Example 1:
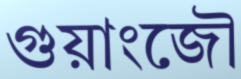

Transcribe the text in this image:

গুয়াংজৌ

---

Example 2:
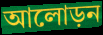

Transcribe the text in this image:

আলোড়ন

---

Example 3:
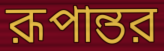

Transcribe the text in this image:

রূপান্তর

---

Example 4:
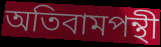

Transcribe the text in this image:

অতিবামপন্থী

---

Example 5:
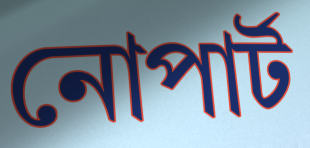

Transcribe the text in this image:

নোপার্ট